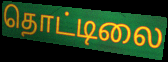
தொட்டிலை